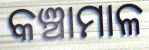
କଞ୍ଚାମାଳ